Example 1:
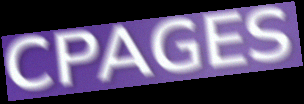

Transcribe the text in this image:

CPAGES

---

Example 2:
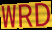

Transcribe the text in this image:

WRD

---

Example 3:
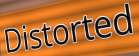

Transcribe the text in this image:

Distorted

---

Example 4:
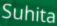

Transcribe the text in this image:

Suhita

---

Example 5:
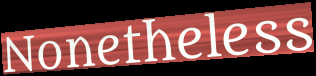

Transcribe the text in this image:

Nonetheless